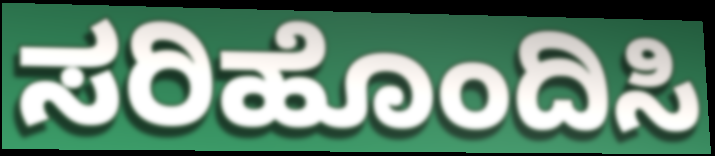
ಸರಿಹೊಂದಿಸಿ